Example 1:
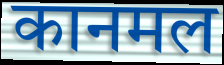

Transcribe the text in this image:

कानमल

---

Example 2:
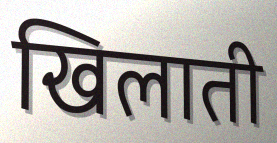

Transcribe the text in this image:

खिलाती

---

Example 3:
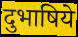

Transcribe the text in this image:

दुभाषिये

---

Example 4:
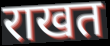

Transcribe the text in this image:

राखत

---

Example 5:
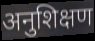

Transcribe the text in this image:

अनुशिक्षण